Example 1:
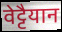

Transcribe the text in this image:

वेट्टैयान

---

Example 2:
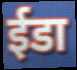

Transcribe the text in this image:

ईडा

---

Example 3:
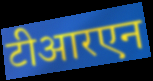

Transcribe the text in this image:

टीआरएन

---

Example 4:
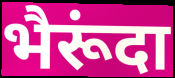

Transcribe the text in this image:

भैरूंदा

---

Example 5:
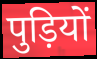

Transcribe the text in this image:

पुड़ियों